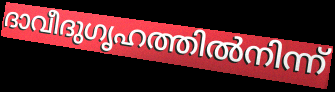
ദാവീദുഗൃഹത്തിൽനിന്ന്